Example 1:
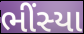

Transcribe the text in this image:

ભીંસ્યા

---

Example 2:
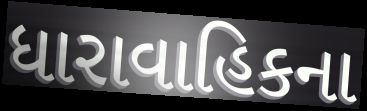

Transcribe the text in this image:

ધારાવાહિકના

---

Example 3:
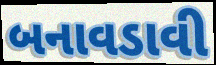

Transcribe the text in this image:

બનાવડાવી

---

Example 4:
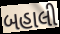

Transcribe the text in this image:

બહાલી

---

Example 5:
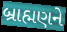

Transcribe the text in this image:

બ્રાહ્મણને